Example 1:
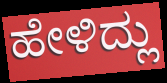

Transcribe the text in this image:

ಹೇಳಿದ್ಲು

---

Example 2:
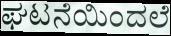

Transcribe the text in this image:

ಘಟನೆಯಿಂದಲೆ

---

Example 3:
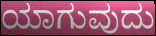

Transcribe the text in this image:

ಯಾಗುವುದು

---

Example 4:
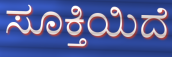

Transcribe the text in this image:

ಸೂಕ್ತಿಯಿದೆ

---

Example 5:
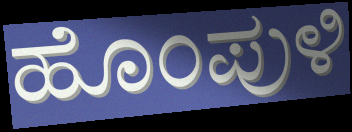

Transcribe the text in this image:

ಹೊಂಪುಳಿ